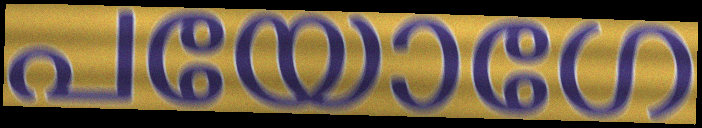
പയോഗേ